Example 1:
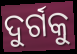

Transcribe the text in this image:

ଦୁର୍ଗକୁ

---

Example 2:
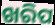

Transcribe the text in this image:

ଖରିପ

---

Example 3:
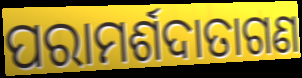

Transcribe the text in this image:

ପରାମର୍ଶଦାତାଗଣ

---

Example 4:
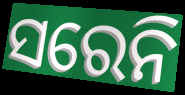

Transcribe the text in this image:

ସରେନି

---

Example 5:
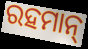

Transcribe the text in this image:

ରହମାନ୍